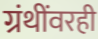
ग्रंथींवरही